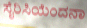
ಸೈರಿಸಿಯೆಂದನಾ